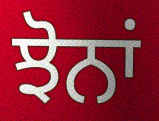
ਝੋਨਾਂ